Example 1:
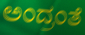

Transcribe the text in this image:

ಅಂದ್ರಂತೆ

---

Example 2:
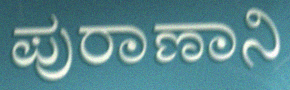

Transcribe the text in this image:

ಪುರಾಣಾನಿ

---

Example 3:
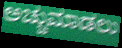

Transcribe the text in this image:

ಅಚ್ಚುಮಾಡಲು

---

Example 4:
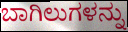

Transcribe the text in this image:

ಬಾಗಿಲುಗಳನ್ನು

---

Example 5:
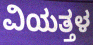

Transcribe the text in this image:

ವಿಯತ್ತಳ